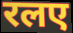
रलए